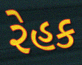
રેહક